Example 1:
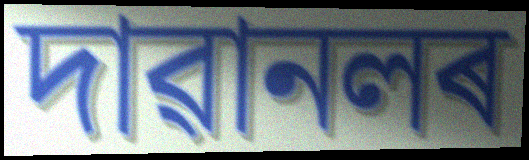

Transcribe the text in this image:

দাৱানলৰ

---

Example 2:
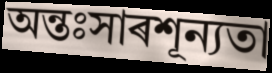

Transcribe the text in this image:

অন্তঃসাৰশূন্যতা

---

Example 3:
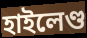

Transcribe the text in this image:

হাইলেণ্ড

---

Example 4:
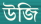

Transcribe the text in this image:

উজি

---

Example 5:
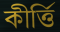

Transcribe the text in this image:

কীৰ্ত্তি